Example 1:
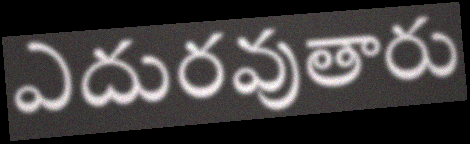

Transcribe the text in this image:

ఎదురవుతారు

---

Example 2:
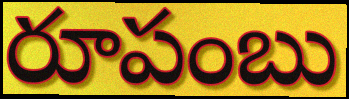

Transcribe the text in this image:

రూపంబు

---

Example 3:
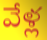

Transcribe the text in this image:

వేళ్ల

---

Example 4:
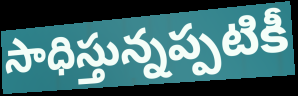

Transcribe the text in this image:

సాధిస్తున్నప్పటికీ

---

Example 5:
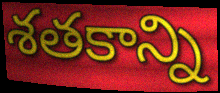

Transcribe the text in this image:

శతకాన్ని